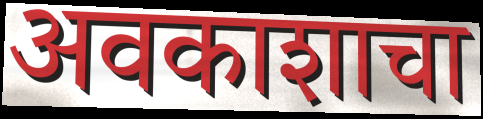
अवकाशाचा